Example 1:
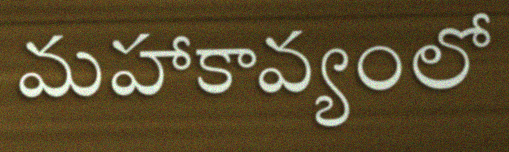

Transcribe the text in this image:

మహాకావ్యంలో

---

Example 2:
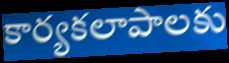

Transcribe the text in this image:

కార్యకలాపాలకు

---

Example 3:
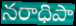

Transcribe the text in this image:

నరాధిపా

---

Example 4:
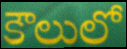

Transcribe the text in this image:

కౌలులో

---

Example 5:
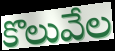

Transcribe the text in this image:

కొలువేల